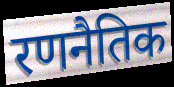
रणनैतिक